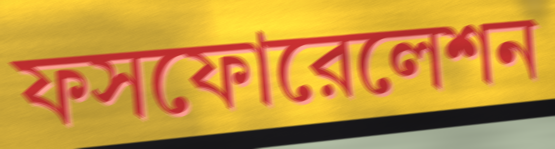
ফসফোরেলেশন